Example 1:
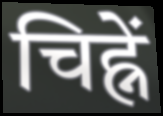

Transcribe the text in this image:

चिह्नें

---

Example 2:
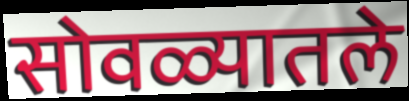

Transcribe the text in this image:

सोवळ्यातले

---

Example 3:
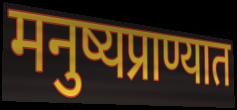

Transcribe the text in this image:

मनुष्यप्राण्यात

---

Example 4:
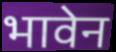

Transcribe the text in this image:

भावेन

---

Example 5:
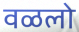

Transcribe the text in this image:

वळलो